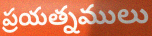
ప్రయత్నములు